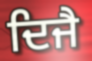
ਦਿਜੈ